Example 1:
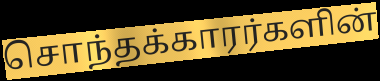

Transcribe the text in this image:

சொந்தக்காரர்களின்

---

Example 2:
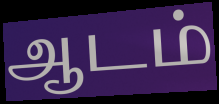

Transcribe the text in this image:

ஆடம்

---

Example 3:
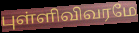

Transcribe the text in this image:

புள்ளிவிவரமே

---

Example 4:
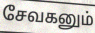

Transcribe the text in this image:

சேவகனும்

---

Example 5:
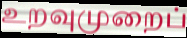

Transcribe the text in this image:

உறவுமுறைப்